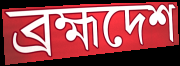
ব্রহ্মদেশ